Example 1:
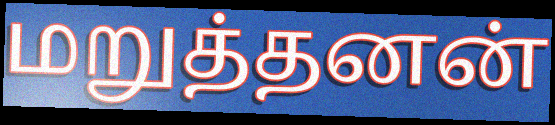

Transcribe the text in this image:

மறுத்தனன்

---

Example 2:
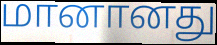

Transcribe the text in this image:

மானானது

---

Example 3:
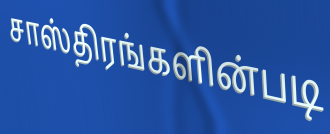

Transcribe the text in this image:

சாஸ்திரங்களின்படி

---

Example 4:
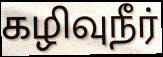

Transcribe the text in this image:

கழிவுநீர்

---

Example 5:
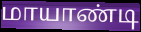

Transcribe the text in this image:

மாயாண்டி